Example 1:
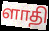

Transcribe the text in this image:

ளாதி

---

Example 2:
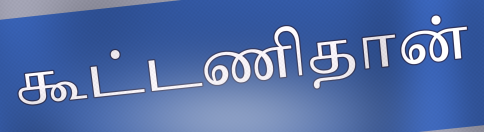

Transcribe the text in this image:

கூட்டணிதான்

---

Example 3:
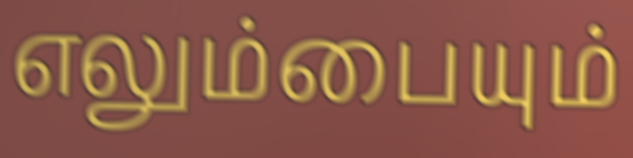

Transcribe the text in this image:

எலும்பையும்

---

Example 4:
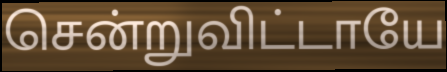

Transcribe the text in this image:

சென்றுவிட்டாயே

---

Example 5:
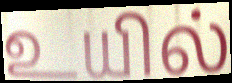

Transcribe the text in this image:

உயில்